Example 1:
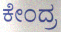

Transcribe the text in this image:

ಕೇಂದ್ರ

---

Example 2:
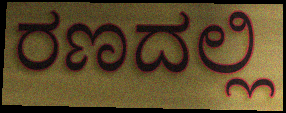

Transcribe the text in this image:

ರಣದಲ್ಲಿ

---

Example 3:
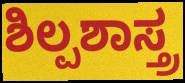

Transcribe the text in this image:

ಶಿಲ್ಪಶಾಸ್ತ್ರ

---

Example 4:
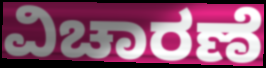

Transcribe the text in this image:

ವಿಚಾರಣೆ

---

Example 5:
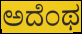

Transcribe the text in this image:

ಅದೆಂಥ